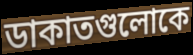
ডাকাতগুলোকে